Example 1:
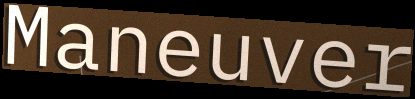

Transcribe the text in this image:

Maneuver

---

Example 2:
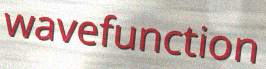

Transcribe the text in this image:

wavefunction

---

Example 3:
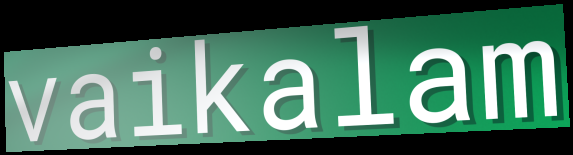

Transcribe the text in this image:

vaikalam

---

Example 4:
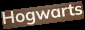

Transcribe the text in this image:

Hogwarts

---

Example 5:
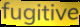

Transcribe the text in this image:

fugitive